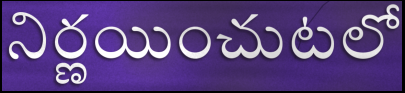
నిర్ణయించుటలో